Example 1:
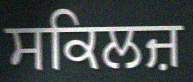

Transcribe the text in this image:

ਸਕਿਲਜ਼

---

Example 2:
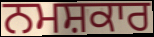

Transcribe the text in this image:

ਨਮਸ਼ਕਾਰ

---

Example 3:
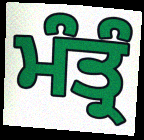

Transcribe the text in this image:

ਮੰਤ੍ਰੰ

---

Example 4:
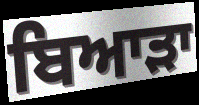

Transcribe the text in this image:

ਬਿਆੜਾ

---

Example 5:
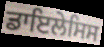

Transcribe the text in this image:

ਡਾਇਲੇਸਿਸ